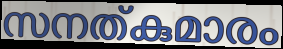
സനത്കുമാരം